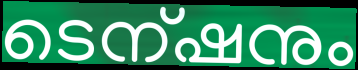
ടെന്ഷനും